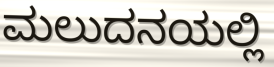
ಮಲುದನಯಲ್ಲಿ